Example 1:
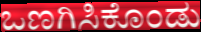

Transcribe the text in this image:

ಒಣಗಿಸಿಕೊಂಡು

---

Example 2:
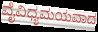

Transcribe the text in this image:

ವೈವಿಧ್ಯಮಯವಾದ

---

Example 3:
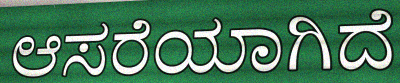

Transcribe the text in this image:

ಆಸರೆಯಾಗಿದೆ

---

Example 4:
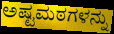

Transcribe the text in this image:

ಅಷ್ಟಮಠಗಳನ್ನು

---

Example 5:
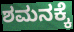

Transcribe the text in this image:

ಶಮನಕ್ಕೆ